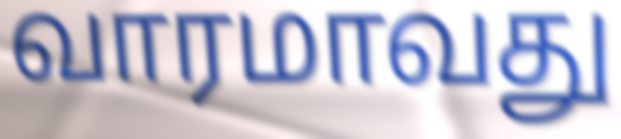
வாரமாவது